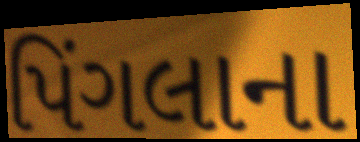
પિંગલાના